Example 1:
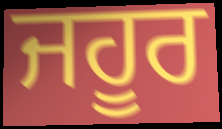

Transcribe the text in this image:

ਜਹੂਰ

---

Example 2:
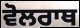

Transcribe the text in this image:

ਵੋਲਰਾਥ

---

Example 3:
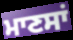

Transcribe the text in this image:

ਮਾਣਸਾਂ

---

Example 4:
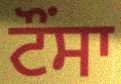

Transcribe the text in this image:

ਟੌਂਸਾ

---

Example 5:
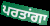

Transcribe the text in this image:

ਪਰਤਾਂਗਾ